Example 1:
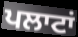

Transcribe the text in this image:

ਪਲਾਟਾਂ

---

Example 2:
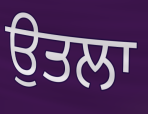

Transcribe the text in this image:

ਉਤਲਾ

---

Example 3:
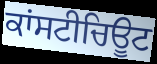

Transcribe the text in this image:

ਕਾਂਸਟੀਚਿਊਟ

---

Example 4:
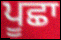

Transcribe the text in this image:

ਪੂਛਾ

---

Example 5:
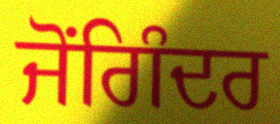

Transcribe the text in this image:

ਜੋਂਗਿੰਦਰ